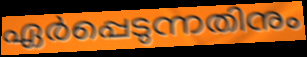
ഏർപ്പെടുന്നതിനും